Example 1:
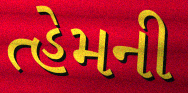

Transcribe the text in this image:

ત્હેમની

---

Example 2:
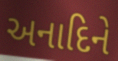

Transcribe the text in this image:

અનાદિને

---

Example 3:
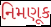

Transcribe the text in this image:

નિમણૂક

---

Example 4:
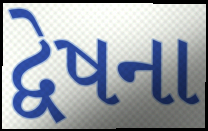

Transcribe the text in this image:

દ્વેષના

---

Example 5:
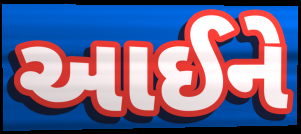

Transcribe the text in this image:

આઈને